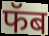
फॅब